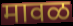
मावळ